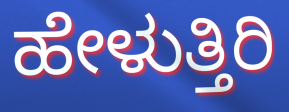
ಹೇಳುತ್ತಿರಿ